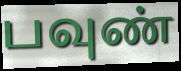
பவுண்